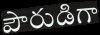
పౌరుడిగా